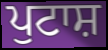
ਪੁਟਾਸ਼